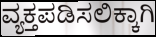
ವ್ಯಕ್ತಪಡಿಸಲಿಕ್ಕಾಗಿ